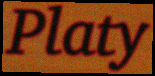
Platy